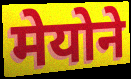
मेयोने